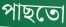
পাছতো